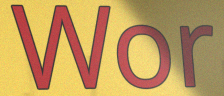
Wor